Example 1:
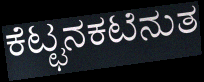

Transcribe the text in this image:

ಕೆಟ್ಟನಕಟೆನುತ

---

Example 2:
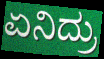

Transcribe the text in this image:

ಏನಿದ್ರು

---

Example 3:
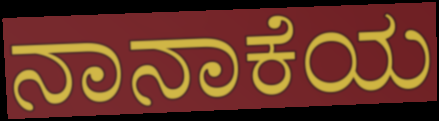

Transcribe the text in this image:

ನಾನಾಕೆಯ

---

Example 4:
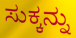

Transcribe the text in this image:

ಸುಕ್ಕನ್ನು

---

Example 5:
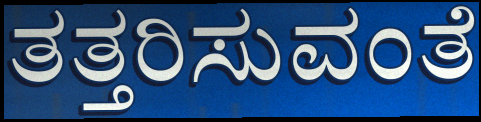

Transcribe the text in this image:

ತತ್ತರಿಸುವಂತೆ